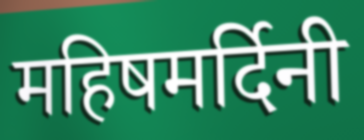
महिषमर्दिनी